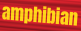
amphibian